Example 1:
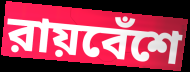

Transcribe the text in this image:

রায়বেঁশে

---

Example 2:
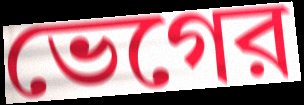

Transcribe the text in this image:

ভেগের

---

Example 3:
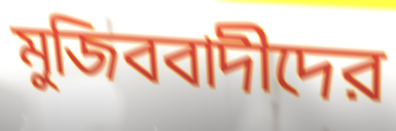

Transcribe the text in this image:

মুজিববাদীদের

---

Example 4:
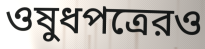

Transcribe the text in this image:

ওষুধপত্রেরও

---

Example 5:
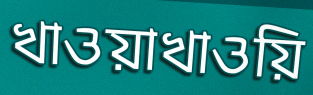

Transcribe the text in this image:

খাওয়াখাওয়ি